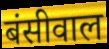
बंसीवाल